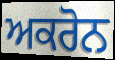
ਅਕਰੋਨ